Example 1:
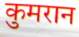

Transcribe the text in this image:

कुमरान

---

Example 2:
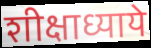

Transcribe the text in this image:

शीक्षाध्याये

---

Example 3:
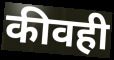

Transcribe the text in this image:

कीवही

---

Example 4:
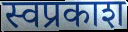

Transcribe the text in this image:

स्वप्रकाश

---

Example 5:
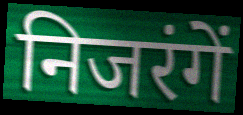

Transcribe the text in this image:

निजरंगें